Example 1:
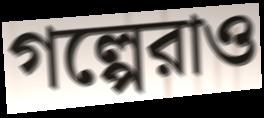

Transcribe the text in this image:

গল্পেরাও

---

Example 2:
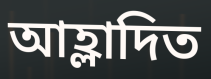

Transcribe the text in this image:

আহ্লাদিত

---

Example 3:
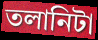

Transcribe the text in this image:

তলানিটা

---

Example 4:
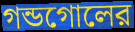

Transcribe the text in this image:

গন্ডগোলের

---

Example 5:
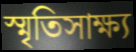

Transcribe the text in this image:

স্মৃতিসাক্ষ্য